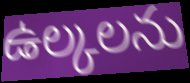
ఉల్కలను